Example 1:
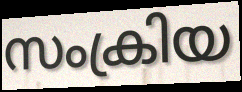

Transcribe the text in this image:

സംക്രിയ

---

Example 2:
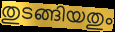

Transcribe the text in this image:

തുടങ്ങിയതും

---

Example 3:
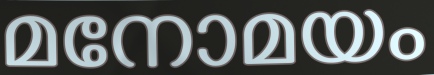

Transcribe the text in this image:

മനോമയം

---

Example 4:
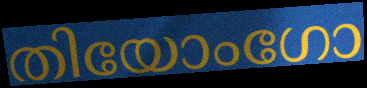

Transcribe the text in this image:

തിയോംഗോ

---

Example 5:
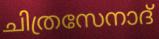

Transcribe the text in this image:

ചിത്രസേനാദ്